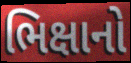
ભિક્ષાનો